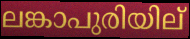
ലങ്കാപുരിയില്